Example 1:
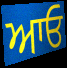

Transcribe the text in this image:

ਆਓ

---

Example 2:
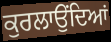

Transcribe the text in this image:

ਕੁਰਲਾਉਂਦਿਆਂ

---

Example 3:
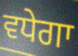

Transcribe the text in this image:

ਵਧੇਗਾ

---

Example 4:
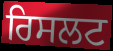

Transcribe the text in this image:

ਰਿਸਲਟ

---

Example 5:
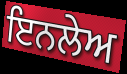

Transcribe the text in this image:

ਇਨਲੇਅ